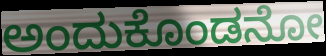
ಅಂದುಕೊಂಡನೋ